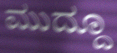
ಮುದ್ದೂ